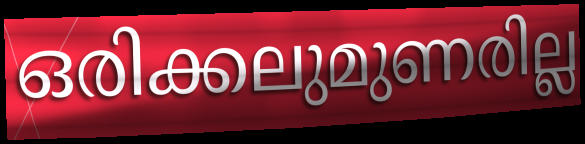
ഒരിക്കലുമുണരില്ല